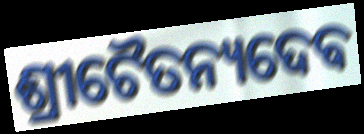
ଶ୍ରୀଚୈତନ୍ୟଦେବ